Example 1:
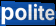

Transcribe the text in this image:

polite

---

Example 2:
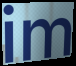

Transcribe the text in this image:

im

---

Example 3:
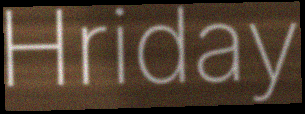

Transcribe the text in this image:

Hriday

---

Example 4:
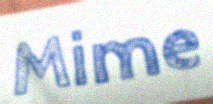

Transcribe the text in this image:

Mime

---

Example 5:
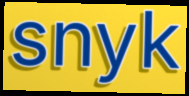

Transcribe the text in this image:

snyk